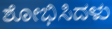
ಶೋಭಿಸಿದಳು